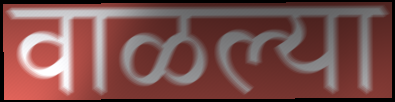
वाळल्या